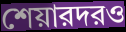
শেয়ারদরও